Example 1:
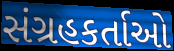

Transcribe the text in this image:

સંગ્રહકર્તાઓ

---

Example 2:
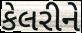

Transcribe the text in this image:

કેલરીને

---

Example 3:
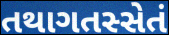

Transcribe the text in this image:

તથાગતસ્સેતં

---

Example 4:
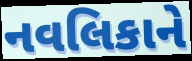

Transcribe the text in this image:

નવલિકાને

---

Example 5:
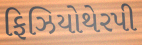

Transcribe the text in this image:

ફિઝિયોથેરપી